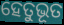
ହେତୁଭୂତ